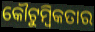
କୌଟୁମ୍ବିକତାର